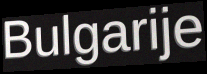
Bulgarije